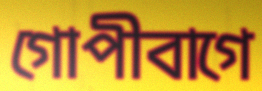
গোপীবাগে